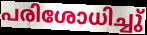
പരിശോധിച്ചു്